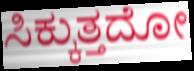
ಸಿಕ್ಕುತ್ತದೋ